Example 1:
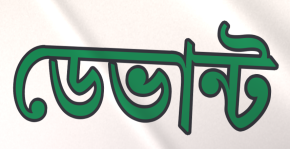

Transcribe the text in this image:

ডেভান্ট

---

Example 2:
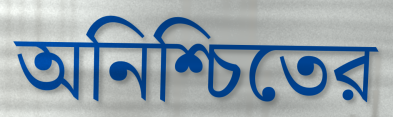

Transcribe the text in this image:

অনিশ্চিতের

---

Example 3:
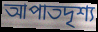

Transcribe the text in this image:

আপাতদৃশ্য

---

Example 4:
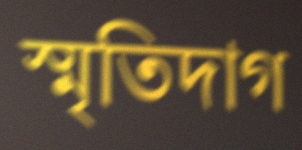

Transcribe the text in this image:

স্মৃতিদাগ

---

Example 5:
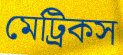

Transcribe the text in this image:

মেট্রিকস